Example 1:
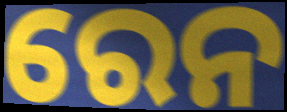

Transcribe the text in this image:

ରେନ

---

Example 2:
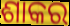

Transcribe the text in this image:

ଶାକର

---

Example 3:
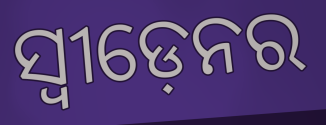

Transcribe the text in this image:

ସ୍ଵୀଡ଼େନର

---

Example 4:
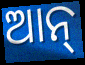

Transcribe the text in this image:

ଆନ୍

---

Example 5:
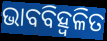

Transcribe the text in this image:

ଭାବବିହ୍ବଳିତ